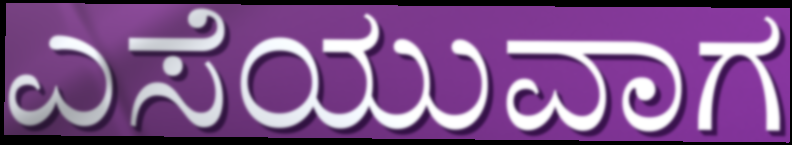
ಎಸೆಯುವಾಗ